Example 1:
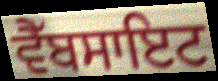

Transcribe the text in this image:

ਵੈੱਬਸਾਇਟ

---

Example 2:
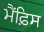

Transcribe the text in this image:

ਮੈਂਫ਼ਿਸ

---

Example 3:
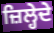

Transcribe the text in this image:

ਜ਼ਿਲ੍ਹੇਦੇ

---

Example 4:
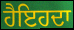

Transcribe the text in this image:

ਹੈਇਹਦਾ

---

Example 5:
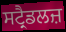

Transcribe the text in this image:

ਸਟ੍ਰੈਡਲਜ਼